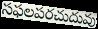
సఫలపరచుదువు